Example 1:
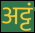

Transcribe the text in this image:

अट्टं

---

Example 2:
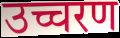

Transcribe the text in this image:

उच्चरण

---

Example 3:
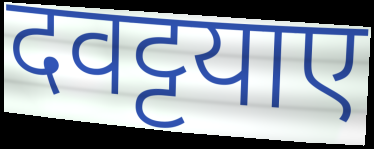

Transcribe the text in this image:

दवट्टयाए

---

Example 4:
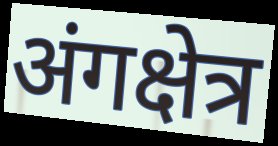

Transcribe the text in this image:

अंगक्षेत्र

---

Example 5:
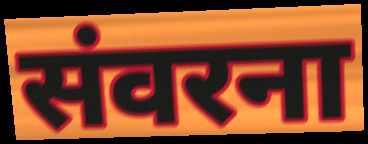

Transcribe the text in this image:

संवरना